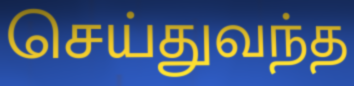
செய்துவந்த